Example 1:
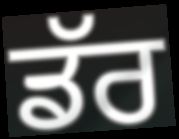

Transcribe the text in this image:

ਡੱਰ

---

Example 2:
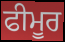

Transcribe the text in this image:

ਫੀਮੂਰ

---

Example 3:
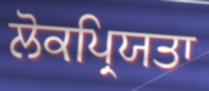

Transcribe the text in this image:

ਲੋਕਪ੍ਰਿਯਤਾ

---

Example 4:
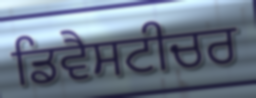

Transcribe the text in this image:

ਡਿਵੈਸਟੀਚਰ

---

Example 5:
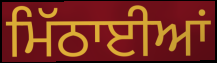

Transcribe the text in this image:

ਮਿੱਠਾਈਆਂ